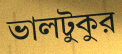
ভালটুকুর